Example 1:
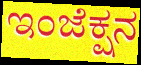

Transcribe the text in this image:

ಇಂಜೆಕ್ಷನ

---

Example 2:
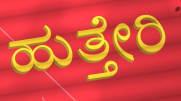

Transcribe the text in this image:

ಹುತ್ತೇರಿ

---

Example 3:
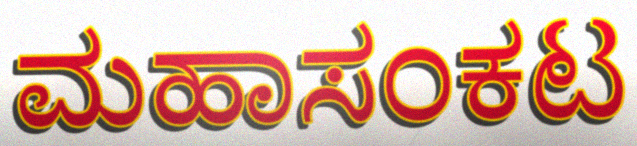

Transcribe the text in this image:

ಮಹಾಸಂಕಟ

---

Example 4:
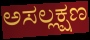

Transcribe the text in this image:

ಅಸಲ್ಲಕ್ಷಣ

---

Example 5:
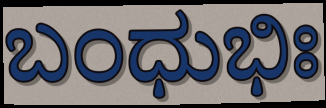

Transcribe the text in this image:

ಬಂಧುಭಿಃ